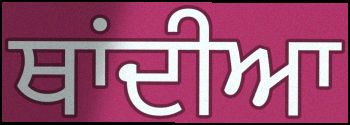
ਥਾਂਦੀਆ